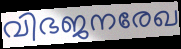
വിഭജനരേഖ